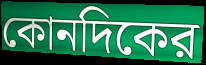
কোনদিকের